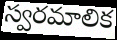
స్వరమాలిక